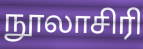
நூலாசிரி